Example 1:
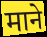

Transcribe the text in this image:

माने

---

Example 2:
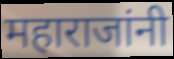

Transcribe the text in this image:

महाराजांनी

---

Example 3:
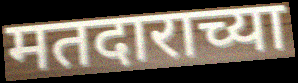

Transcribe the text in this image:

मतदाराच्या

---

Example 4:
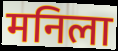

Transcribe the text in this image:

मनिला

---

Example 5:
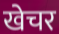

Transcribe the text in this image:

खेचर